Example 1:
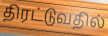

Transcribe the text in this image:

திரட்டுவதில்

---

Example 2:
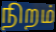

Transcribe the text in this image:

நிறம்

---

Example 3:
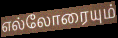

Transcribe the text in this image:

எல்லோரையும்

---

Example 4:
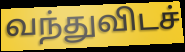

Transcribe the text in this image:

வந்துவிடச்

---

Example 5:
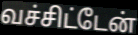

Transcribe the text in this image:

வச்சிட்டேன்